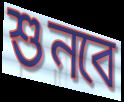
শুনবে